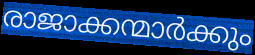
രാജാക്കന്മാർക്കും